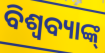
ବିଶ୍ବବ୍ୟାଙ୍କ୍